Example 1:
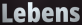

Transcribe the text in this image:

Lebens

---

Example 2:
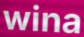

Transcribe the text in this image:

wina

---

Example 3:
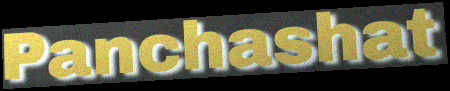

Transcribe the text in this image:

Panchashat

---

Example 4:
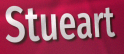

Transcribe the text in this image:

Stueart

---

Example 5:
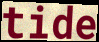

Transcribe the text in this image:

tide